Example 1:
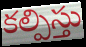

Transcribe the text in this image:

కల్పిస్తు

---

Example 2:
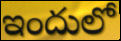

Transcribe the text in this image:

ఇందులో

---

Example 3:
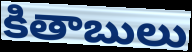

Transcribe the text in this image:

కితాబులు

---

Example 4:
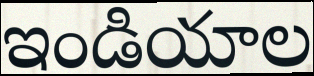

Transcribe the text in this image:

ఇండియాల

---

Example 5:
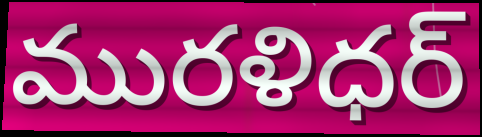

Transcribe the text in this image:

మురళిధర్